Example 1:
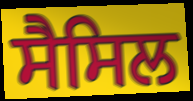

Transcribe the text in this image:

ਸੈਸਿਲ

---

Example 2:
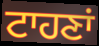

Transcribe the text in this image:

ਟਾਹਣਾਂ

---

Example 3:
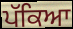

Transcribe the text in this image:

ਪੱਕਿਆ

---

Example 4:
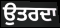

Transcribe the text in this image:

ਉਤਰਦਾ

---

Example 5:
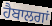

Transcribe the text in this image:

ਹੈਬਾਲਗਾਂ